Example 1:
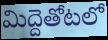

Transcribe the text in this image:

మిద్దెతోటలో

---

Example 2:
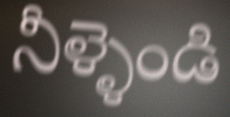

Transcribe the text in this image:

నీళ్ళెండి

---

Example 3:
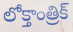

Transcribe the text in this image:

లోక్తాంత్రిక్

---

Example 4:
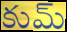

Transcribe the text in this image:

కుమ్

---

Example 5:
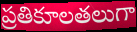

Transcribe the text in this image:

ప్రతికూలతలుగా